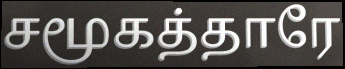
சமூகத்தாரே